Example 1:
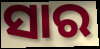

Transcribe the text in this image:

ସାର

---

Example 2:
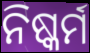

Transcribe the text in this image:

ନିଷ୍କର୍ମ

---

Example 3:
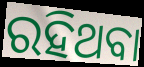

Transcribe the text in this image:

ରହିଥବା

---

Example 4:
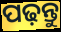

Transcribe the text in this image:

ପଢ଼ନ୍ତୁ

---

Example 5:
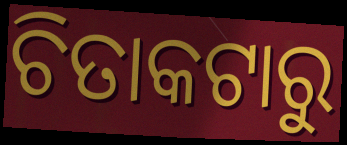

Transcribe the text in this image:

ଚିତାକଟାରୁ